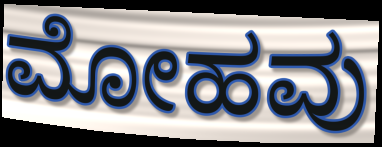
ಮೋಹವು